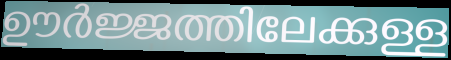
ഊർജ്ജത്തിലേക്കുള്ള